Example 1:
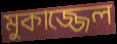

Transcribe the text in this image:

মুকাজ্জেল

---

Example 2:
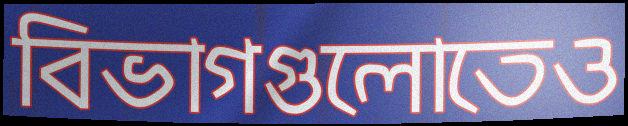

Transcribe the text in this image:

বিভাগগুলোতেও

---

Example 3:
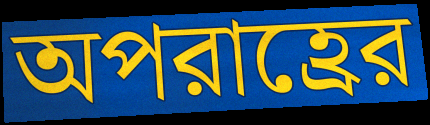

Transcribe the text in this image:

অপরাহ্রের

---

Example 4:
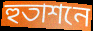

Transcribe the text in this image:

হুতাশনে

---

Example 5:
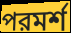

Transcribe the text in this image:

পরমর্শ